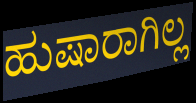
ಹುಷಾರಾಗಿಲ್ಲ